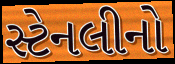
સ્ટેનલીનો